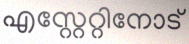
എസ്റ്റേറ്റിനോട്